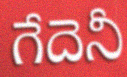
గేదెనీ